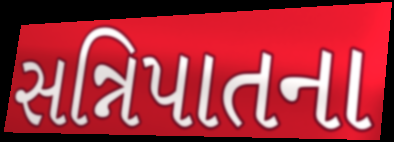
સન્નિપાતના